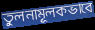
তুলনামূলকভাবে